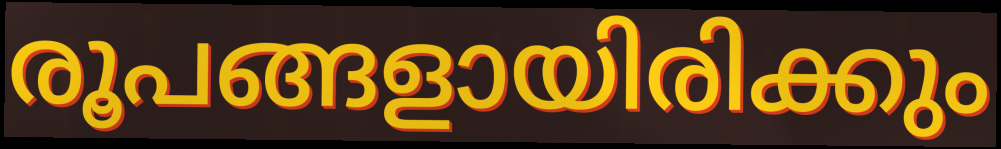
രൂപങ്ങളായിരിക്കും